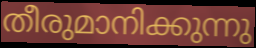
തീരുമാനിക്കുന്നു